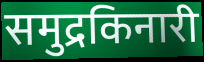
समुद्रकिनारी